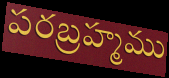
పరబ్రహ్మము